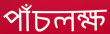
পাঁচলক্ষ